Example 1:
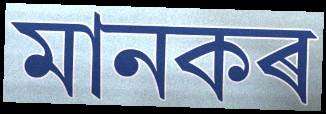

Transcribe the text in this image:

মানকৰ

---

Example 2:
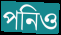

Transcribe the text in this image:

পনিও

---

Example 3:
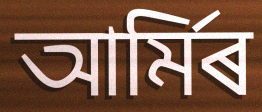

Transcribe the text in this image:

আৰ্মিৰ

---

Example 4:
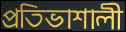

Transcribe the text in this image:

প্ৰতিভাশালী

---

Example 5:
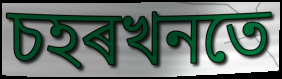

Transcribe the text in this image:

চহৰখনতে